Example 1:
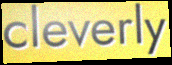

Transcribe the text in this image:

cleverly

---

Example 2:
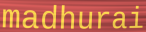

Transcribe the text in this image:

madhurai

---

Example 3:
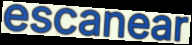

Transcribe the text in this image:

escanear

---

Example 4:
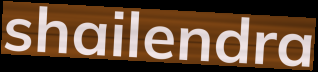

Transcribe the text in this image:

shailendra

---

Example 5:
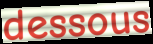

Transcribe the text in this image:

dessous